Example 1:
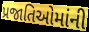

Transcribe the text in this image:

પ્રજાતિઓમાંની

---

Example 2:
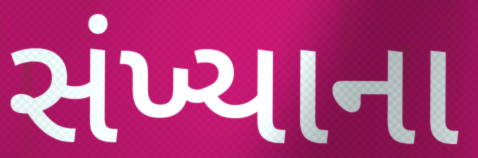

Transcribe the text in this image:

સંખ્યાના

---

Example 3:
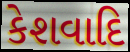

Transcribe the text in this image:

કેશવાદિ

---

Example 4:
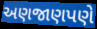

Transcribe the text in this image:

અણજાણપણે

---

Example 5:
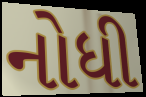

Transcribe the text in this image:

નોધી